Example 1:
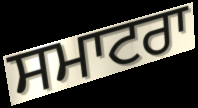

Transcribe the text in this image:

ਸਮਾਟਰਾ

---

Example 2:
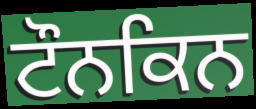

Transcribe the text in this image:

ਟੌਨਕਿਨ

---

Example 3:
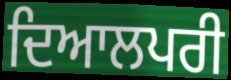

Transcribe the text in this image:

ਦਿਆਲਪਰੀ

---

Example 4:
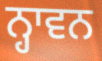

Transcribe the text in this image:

ਨ੍ਹਾਵਨ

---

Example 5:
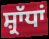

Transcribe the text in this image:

ਸ਼੍ਰਾੱਧਾਂ